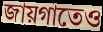
জায়গাতেও